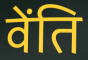
वेंति